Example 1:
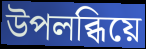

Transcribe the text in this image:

উপলব্ধিয়ে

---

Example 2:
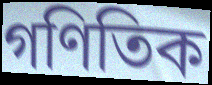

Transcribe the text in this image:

গণিতিক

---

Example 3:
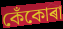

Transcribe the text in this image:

কেঁকোৰা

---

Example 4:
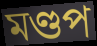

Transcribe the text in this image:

মণ্ডপ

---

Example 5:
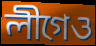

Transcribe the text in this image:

লীগেও